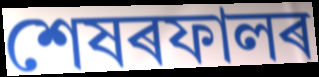
শেষৰফালৰ